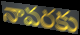
నావరకు